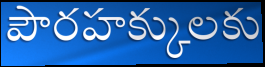
పౌరహక్కులకు